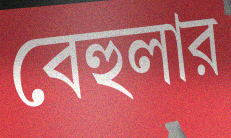
বেহুলার